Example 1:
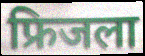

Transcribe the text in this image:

फ्रिजला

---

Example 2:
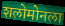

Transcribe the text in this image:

शलोमोनला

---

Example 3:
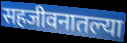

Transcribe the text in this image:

सहजीवनातल्या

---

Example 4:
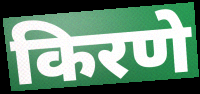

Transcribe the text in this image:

किरणे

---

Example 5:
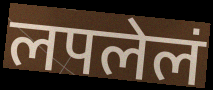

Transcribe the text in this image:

लपलेलं